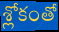
శ్లోకంతో